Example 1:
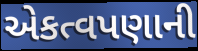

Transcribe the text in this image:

એકત્વપણાની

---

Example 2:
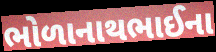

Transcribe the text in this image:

ભોળાનાથભાઈના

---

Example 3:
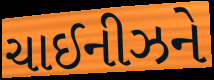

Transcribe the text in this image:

ચાઈનીઝને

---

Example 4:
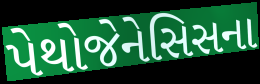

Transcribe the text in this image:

પેથોજેનેસિસના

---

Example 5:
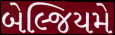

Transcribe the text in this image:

બેલ્જિયમે